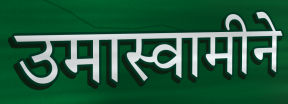
उमास्वामीने